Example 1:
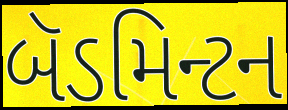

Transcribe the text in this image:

બૅડમિન્ટન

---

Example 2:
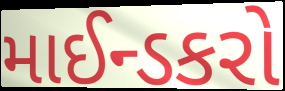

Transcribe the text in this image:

માઈન્ડકરો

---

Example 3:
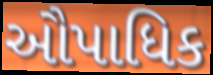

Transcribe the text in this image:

ઔપાધિક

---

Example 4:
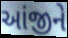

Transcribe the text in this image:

આંજીને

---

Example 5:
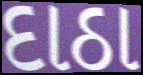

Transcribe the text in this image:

દાઠા